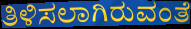
ತಿಳಿಸಲಾಗಿರುವಂತೆ